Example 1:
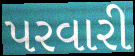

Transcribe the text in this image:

પરવારી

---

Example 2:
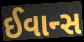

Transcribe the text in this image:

ઈવાન્સ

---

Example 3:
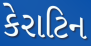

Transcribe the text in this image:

કેરાટિન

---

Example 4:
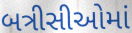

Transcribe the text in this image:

બત્રીસીઓમાં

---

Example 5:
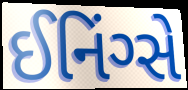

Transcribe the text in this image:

ઈનિંગ્સે